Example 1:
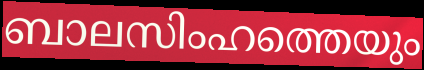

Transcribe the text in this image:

ബാലസിംഹത്തെയും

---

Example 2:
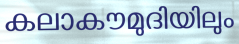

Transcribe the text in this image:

കലാകൗമുദിയിലും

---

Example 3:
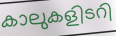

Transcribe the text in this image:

കാലുകളിടറി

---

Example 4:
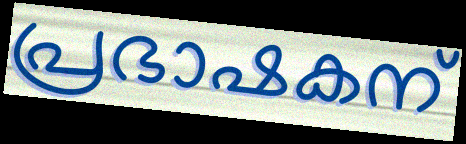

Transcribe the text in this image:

പ്രഭാഷകന്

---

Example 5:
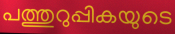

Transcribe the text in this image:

പത്തുറുപ്പികയുടെ